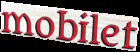
mobilet